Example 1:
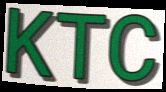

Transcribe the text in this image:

KTC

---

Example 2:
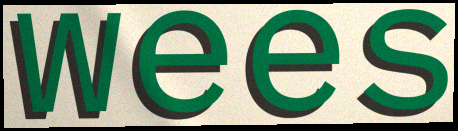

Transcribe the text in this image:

wees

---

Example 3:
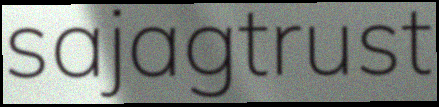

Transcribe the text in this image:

sajagtrust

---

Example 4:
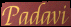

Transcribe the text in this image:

Padavi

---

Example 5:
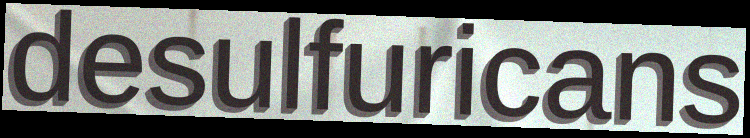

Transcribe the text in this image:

desulfuricans